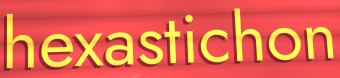
hexastichon